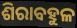
ଶିରାବହୁଳ